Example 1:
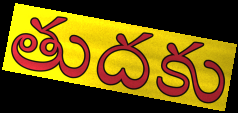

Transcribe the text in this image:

తుదకు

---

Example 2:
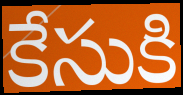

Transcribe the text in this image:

కేసుకి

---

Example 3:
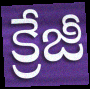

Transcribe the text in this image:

క్రేజీ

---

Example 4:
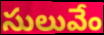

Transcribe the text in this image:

సులువేం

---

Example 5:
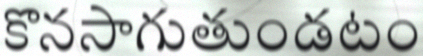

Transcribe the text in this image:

కొనసాగుతుండటం